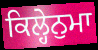
ਕਿਲ੍ਹੇਨੁਮਾ